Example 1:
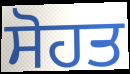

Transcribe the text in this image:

ਸੋਹਤ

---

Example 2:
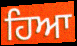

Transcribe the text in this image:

ਹਿਆ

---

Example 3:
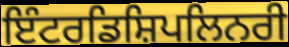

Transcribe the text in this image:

ਇੰਟਰਡਿਸ਼ਿਪਲਿਨਰੀ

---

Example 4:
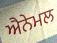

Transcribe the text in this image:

ਐਨੇਮਲ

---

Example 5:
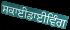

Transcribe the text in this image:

ਸਕਾਈਡਾਈਵਿੰਗ